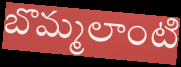
బొమ్మలాంటి